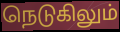
நெடுகிலும்